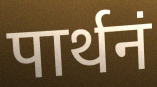
पार्थनं